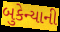
બુકેન્યાની